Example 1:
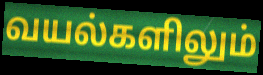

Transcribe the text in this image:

வயல்களிலும்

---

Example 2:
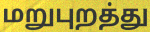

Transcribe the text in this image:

மறுபுறத்து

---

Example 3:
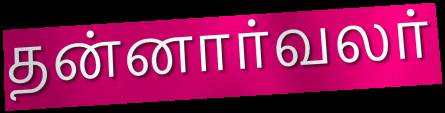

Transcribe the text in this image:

தன்னார்வலர்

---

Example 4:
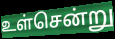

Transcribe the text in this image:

உள்சென்று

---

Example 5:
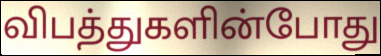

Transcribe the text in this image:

விபத்துகளின்போது